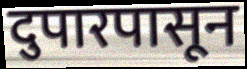
दुपारपासून